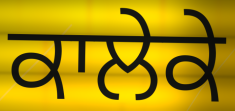
ਕਾਲੇਕੇ